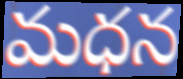
మధన